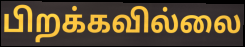
பிறக்கவில்லை